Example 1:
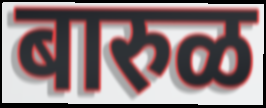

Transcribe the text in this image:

बारुळ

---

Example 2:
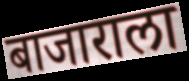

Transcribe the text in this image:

बाजाराला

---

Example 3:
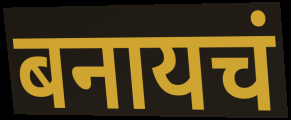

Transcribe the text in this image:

बनायचं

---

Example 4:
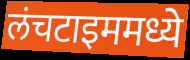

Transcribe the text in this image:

लंचटाइममध्ये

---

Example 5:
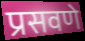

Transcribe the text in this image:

प्रसवणे